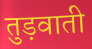
तुड़वाती